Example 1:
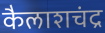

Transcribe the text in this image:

कैलाशचंद्र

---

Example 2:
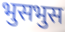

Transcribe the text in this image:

भुसभुस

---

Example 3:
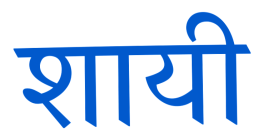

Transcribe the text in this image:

शायी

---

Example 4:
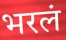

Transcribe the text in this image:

भरलं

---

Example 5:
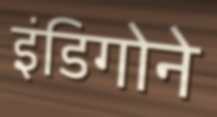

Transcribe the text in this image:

इंडिगोने